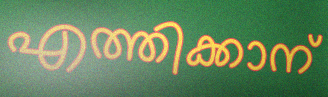
എത്തിക്കാന്